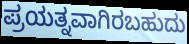
ಪ್ರಯತ್ನವಾಗಿರಬಹುದು